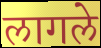
लागले